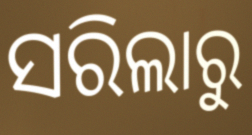
ସରିଲାରୁ